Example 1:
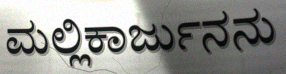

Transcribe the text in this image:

ಮಲ್ಲಿಕಾರ್ಜುನನು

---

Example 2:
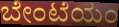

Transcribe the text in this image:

ಬೇಂಟೆಯಂ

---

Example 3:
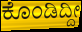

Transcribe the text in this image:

ಕೊಂಡಿದ್ದೀ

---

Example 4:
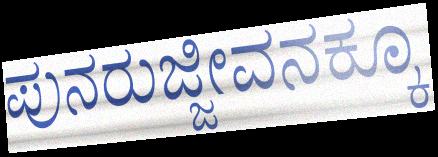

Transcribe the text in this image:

ಪುನರುಜ್ಜೀವನಕ್ಕೂ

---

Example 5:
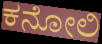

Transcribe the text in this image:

ಕನೋಲಿ